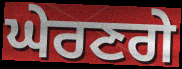
ਘੇਰਣਗੇ